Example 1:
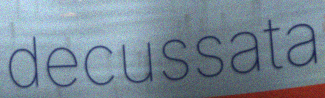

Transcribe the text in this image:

decussata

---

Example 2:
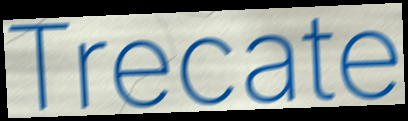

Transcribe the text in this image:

Trecate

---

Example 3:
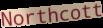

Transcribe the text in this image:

Northcott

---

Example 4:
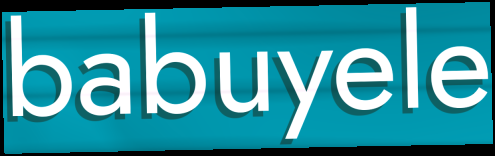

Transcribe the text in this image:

babuyele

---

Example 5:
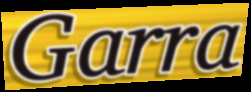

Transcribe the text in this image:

Garra